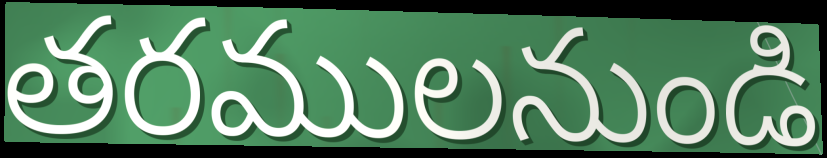
తరములనుండి